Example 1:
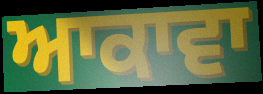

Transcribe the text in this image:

ਆਕਾਵਾ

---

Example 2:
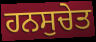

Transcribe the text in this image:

ਹਨਸੁਚੇਤ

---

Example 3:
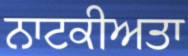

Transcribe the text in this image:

ਨਾਟਕੀਅਤਾ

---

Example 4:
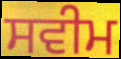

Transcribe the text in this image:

ਸਵੀਮ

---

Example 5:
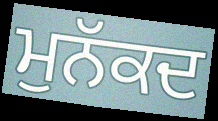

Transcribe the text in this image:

ਮੁਨੱਕਦ